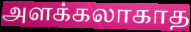
அளக்கலாகாத